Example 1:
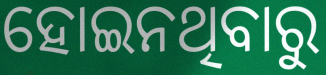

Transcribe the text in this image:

ହୋଇନଥିବାରୁ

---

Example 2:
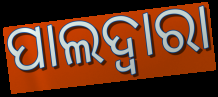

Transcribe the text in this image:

ପାଲଦ୍ୱାରା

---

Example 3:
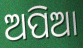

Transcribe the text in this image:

ଅପିଆ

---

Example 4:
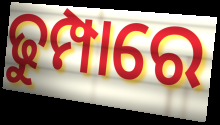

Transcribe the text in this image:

ଢୁମ୍ପାରେ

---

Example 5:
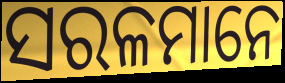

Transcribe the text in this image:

ସରଳମାନେ